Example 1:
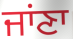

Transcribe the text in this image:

ਜਾਂਣਾ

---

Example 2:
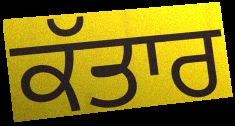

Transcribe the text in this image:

ਕੱਤਾਰ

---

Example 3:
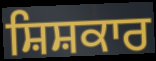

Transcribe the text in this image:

ਸ਼ਿਸ਼ਕਾਰ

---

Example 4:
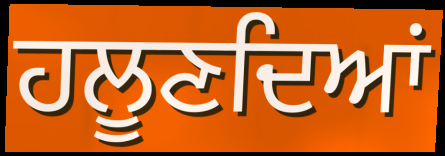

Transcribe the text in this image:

ਹਲੂਣਦਿਆਂ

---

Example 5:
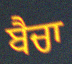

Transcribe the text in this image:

ਬੈਚਾ